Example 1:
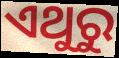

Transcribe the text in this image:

ଏଥୁରୁ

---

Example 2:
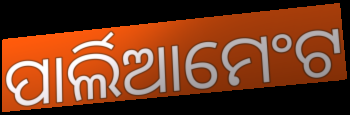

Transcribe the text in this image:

ପାର୍ଲିଆମେଂଟ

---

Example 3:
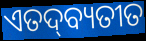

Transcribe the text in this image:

ଏତଦ୍‍ବ୍ୟତୀତ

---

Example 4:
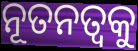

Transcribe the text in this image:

ନୂତନତ୍ବକୁ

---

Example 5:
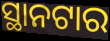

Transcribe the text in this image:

ସ୍ଥାନଟାର